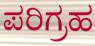
ಪರಿಗ್ರಹ